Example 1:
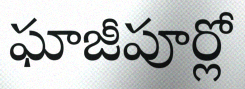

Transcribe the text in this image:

ఘాజీపూర్లో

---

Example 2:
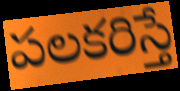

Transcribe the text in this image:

పలకరిస్తే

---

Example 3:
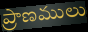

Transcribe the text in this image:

ప్రాణములు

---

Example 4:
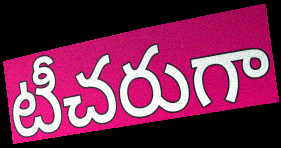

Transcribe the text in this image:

టీచరుగా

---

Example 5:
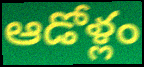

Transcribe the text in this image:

ఆడోళ్లం